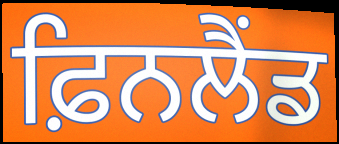
ਫ਼ਿਨਲੈਂਡ